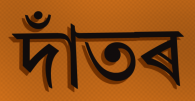
দাঁতৰ